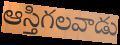
ఆస్తిగలవాడు